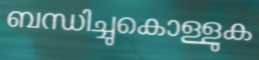
ബന്ധിച്ചുകൊള്ളുക